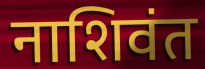
नाशिवंत